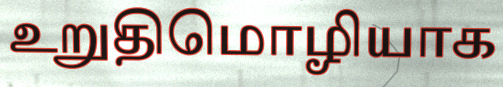
உறுதிமொழியாக